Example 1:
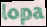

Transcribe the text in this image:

lopa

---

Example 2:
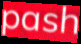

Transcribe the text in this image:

pash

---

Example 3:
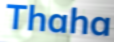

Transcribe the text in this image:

Thaha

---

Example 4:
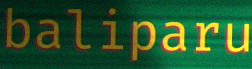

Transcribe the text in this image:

baliparu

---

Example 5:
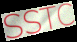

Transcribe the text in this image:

SSTC